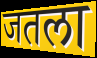
जतला